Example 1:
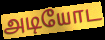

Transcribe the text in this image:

அடியோட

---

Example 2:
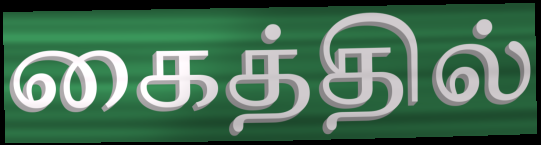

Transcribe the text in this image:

கைத்தில்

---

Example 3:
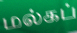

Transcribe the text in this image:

மல்கப்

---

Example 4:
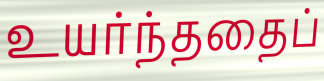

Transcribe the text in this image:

உயர்ந்ததைப்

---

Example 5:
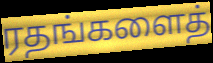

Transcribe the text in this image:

ரதங்களைத்